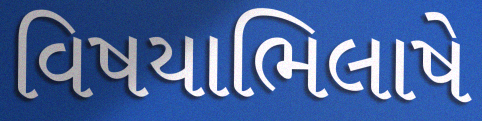
વિષયાભિલાષે